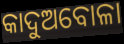
କାଦୁଅବୋଳା